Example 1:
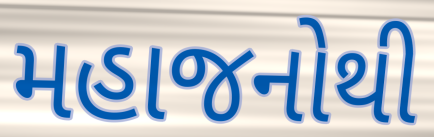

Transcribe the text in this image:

મહાજનોથી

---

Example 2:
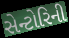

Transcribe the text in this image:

સેન્ટોરિની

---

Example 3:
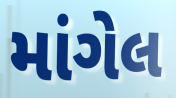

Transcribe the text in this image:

માંગેલ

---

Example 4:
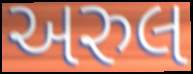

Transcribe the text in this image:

અરુલ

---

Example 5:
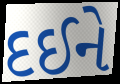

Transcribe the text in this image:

દઈને